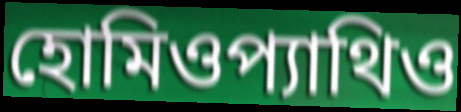
হোমিওপ্যাথিও